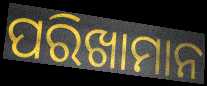
ପରିଖାମାନ